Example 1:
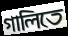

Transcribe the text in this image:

গালিতে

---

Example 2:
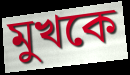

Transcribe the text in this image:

মুখকে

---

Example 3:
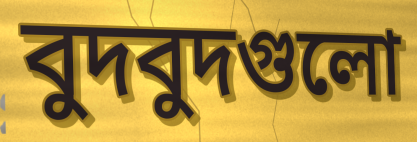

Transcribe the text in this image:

বুদবুদগুলো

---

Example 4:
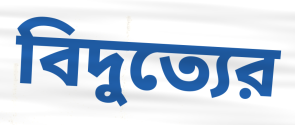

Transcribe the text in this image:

বিদুত্যের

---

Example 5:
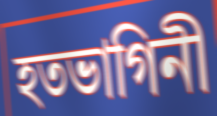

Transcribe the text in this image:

হতভাগিনী